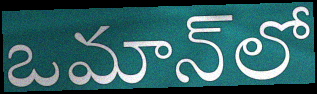
ఒమాన్‌లో